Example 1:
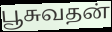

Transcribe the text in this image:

பூசுவதன்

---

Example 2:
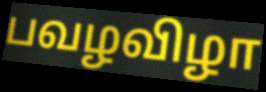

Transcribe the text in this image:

பவழவிழா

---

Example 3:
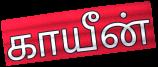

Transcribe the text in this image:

காயீன்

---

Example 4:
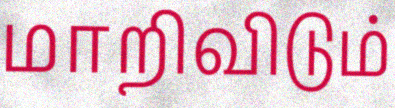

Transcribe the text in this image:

மாறிவிடும்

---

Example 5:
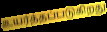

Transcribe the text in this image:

உயர்த்தப்படுகிறது